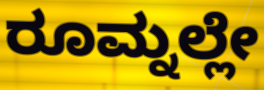
ರೂಮ್ನಲ್ಲೇ